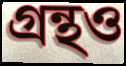
গ্ৰন্থও